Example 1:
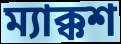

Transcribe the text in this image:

ম্যাক্কশ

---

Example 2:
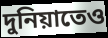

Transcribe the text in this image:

দুনিয়াতেও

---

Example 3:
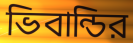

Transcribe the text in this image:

ভিবান্ডির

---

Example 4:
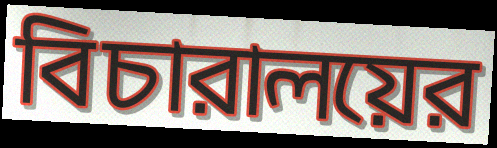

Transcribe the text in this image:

বিচারালয়ের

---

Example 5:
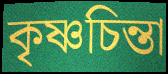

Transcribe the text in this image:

কৃষ্ণচিন্তা